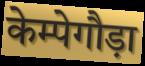
केम्पेगौड़ा